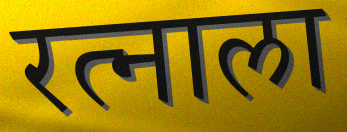
रत्नाला